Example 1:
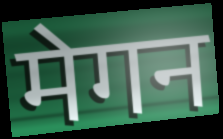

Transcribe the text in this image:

मेगन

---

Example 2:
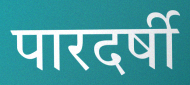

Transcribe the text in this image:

पारदर्षी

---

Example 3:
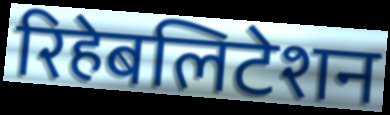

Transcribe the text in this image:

रिहेबलिटेशन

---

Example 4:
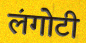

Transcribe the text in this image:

लंगोटी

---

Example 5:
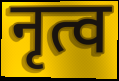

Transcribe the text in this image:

नृत्व